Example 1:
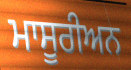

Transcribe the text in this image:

ਮਾਸੂਰੀਅਨ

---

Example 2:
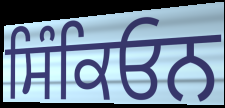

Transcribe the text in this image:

ਸਿੰਕਿਓਨ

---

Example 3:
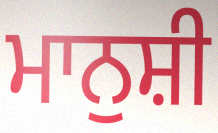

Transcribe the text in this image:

ਮਾਨੁਸ਼ੀ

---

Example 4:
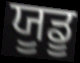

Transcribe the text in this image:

ਯੂਡੂ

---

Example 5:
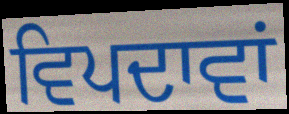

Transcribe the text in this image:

ਵਿਪਦਾਵਾਂ